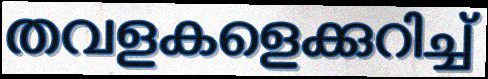
തവളകളെക്കുറിച്ച്